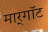
मार्गॉट